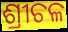
ଶ୍ରୀଚଳ